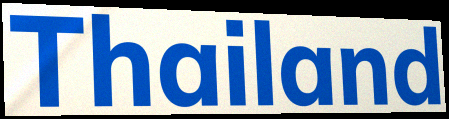
Thailand